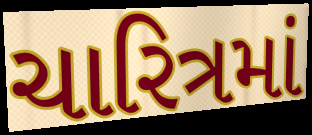
ચારિત્રમાં